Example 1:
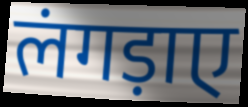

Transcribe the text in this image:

लंगड़ाए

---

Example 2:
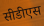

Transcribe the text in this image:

सीडीएस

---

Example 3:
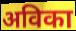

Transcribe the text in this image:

अविका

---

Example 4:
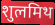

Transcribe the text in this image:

शुलमिथ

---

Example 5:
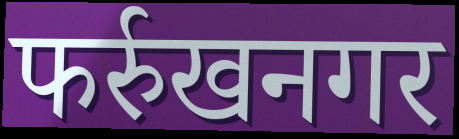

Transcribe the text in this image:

फर्रुखनगर